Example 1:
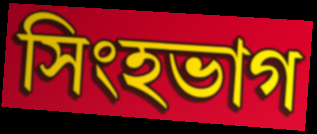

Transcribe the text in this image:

সিংহভাগ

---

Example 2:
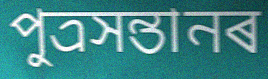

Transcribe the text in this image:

পুত্ৰসন্তানৰ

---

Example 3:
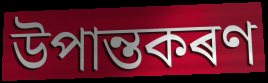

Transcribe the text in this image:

উপান্তকৰণ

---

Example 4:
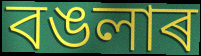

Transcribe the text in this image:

বঙলাৰ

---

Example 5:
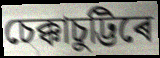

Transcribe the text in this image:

চেক্কাচুট্টিৰে